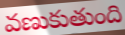
వణుకుతుంది